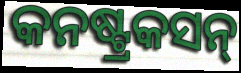
କନଷ୍ଟ୍ରକସନ୍